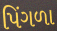
પિંગળા